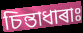
চিন্তাধাৰাঃ